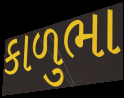
કાળુભા